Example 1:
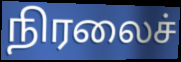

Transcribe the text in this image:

நிரலைச்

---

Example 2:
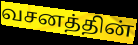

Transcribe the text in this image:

வசனத்தின்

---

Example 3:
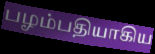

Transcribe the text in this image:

பழம்பதியாகிய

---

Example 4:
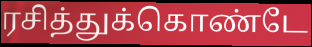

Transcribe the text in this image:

ரசித்துக்கொண்டே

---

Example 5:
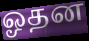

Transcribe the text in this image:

ஓதன